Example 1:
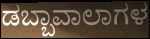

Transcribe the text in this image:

ಡಬ್ಬಾವಾಲಾಗಳ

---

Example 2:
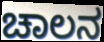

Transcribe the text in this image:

ಚಾಲನ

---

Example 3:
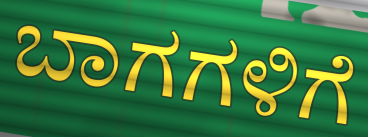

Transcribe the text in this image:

ಬಾಗಗಳಿಗೆ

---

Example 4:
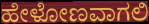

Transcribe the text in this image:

ಹೇಳೋಣವಾಗಲಿ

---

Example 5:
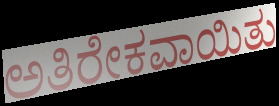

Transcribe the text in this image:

ಅತಿರೇಕವಾಯಿತು